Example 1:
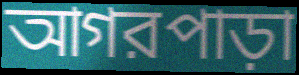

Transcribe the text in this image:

আগরপাড়া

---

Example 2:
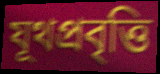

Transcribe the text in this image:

যূথপ্রবৃত্তি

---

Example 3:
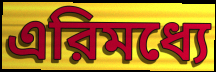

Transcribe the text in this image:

এরিমধ্যে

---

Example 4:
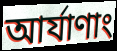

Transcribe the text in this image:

আর্যাণাং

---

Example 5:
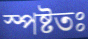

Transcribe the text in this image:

স্পষ্টতঃ